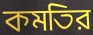
কমতির